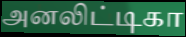
அனலிட்டிகா